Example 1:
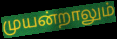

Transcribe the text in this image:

முயன்றாலும்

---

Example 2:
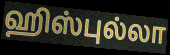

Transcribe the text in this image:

ஹிஸ்புல்லா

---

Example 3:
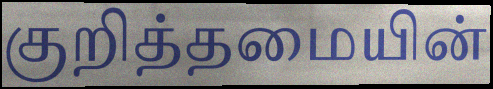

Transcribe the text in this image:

குறித்தமையின்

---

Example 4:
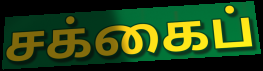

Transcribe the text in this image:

சக்கைப்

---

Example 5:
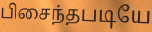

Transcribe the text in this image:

பிசைந்தபடியே